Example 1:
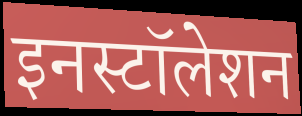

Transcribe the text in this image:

इनस्टॉलेशन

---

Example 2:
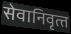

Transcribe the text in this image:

सेवानिवृत्‍त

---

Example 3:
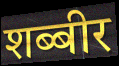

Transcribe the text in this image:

शब्बीर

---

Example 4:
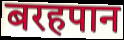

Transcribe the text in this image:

बरहपान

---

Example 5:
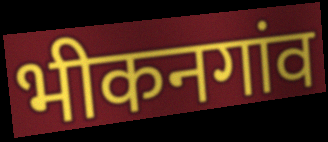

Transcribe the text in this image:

भीकनगांव